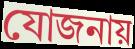
যোজনায়